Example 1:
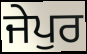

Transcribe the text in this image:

ਜੇਪੁਰ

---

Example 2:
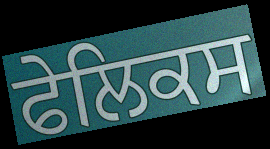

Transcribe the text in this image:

ਫੇਲਿਕਸ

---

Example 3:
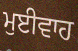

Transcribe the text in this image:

ਮੁਈਵਾਹ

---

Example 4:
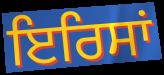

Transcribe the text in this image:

ਇਰਿਸਾਂ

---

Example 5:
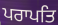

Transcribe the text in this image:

ਪਰਾਪਤਿ